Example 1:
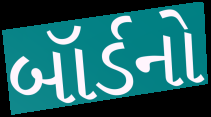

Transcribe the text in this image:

બૉર્ડનો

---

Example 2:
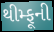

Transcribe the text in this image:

થીમ્ફૂની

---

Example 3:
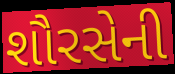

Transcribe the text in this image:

શૌરસેની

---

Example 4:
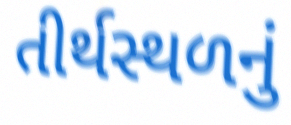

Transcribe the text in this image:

તીર્થસ્થળનું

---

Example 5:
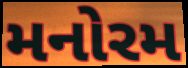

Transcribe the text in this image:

મનોરમ